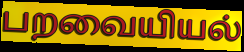
பறவையியல்